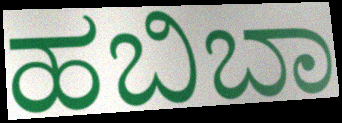
ಹಬಿಬಾ